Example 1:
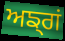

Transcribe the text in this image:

ਅਙ੍ਗਂ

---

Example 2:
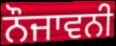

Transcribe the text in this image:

ਨੌਜਾਵਨੀ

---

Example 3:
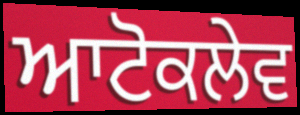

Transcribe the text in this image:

ਆਟੋਕਲੇਵ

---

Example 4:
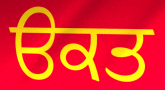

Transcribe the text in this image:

ੳਕਤ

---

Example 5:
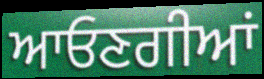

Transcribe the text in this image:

ਆਓਣਗੀਆਂ